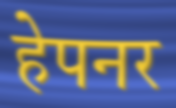
हेपनर